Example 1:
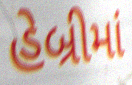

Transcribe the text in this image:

હેબ્રીમાં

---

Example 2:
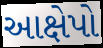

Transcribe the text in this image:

આક્ષેપો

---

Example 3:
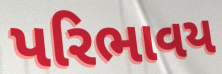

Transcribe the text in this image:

પરિભાવય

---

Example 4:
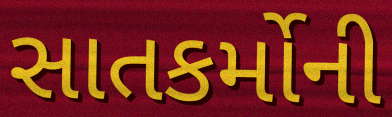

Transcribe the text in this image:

સાતકર્મોની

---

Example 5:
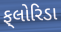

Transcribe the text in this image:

ફ્‌લોરિડા